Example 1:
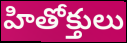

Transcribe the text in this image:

హితోక్తులు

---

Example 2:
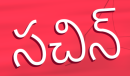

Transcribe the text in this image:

సచిన్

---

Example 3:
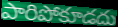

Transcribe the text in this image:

పారిపోకూడదు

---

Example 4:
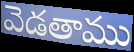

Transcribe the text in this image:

వెడతాము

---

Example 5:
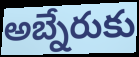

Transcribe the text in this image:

అబ్నేరుకు